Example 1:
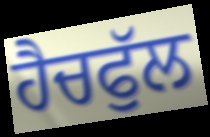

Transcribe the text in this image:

ਹੈਚਫੁੱਲ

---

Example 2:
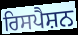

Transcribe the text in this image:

ਰਿਸਪੈਸ਼ਨ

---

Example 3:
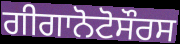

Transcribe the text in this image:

ਗੀਗਾਨੋਟੋਸੌਰਸ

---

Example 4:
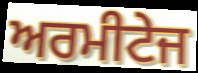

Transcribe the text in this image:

ਅਰਮੀਟੇਜ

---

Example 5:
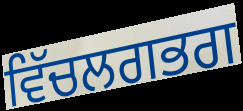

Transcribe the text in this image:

ਵਿੱਚਲਗਭਗ